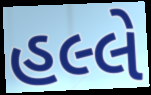
હલ્લે